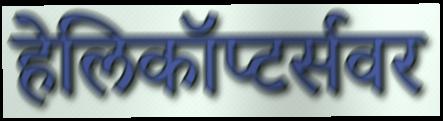
हेलिकॉप्टर्सवर